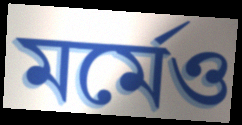
মর্মেও